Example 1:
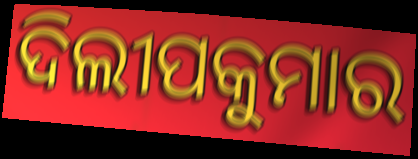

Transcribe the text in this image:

ଦିଲୀପକୁମାର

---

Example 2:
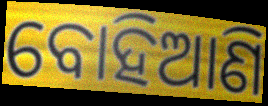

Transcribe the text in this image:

ବୋହିଆଣି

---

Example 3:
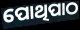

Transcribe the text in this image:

ପୋଥିପାଠ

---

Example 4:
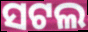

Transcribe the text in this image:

ସଟଲ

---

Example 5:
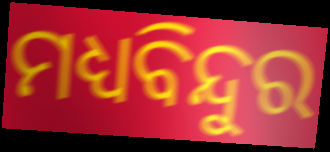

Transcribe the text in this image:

ମଧ୍ୟବିନ୍ଦୁର